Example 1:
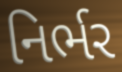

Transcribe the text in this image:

નિર્ભર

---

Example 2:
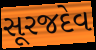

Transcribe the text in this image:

સૂરજદેવ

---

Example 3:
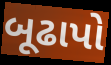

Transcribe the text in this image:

બૂઢાપો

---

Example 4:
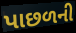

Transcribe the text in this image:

પાછળની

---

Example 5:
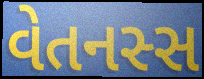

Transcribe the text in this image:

વેતનસ્સ